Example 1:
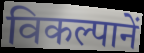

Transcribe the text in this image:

विकल्पानें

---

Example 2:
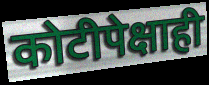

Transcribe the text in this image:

कोटीपेक्षाही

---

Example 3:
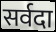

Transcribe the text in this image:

सर्वदा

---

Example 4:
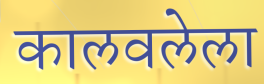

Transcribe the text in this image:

कालवलेला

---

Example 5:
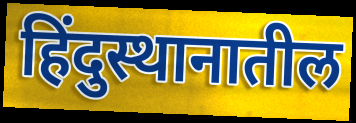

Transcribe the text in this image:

हिंदुस्थानातील